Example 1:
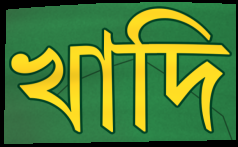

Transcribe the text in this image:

খাদি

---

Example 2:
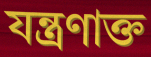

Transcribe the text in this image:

যন্ত্রণাক্ত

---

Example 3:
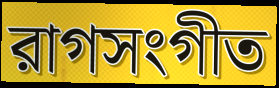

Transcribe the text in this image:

রাগসংগীত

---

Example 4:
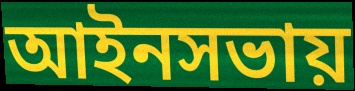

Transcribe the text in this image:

আইনসভায়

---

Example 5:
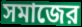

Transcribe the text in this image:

সমাজের